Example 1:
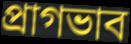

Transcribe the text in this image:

প্রাগভাব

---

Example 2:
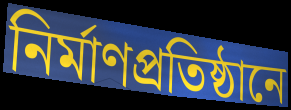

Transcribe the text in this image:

নির্মাণপ্রতিষ্ঠানে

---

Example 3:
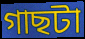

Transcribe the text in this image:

গাছটা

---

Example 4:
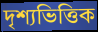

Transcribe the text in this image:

দৃশ্যভিত্তিক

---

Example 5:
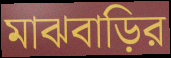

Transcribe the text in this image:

মাঝবাড়ির